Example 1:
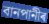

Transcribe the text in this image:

বানপানীৰ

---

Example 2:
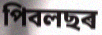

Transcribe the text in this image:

পিবলছৰ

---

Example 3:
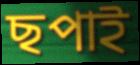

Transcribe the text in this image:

ছপাই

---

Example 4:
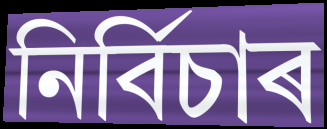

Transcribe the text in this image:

নিৰ্বিচাৰ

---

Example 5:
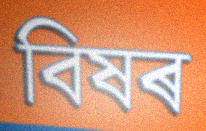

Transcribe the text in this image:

বিষৰ